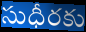
సుధీరకు